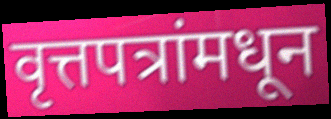
वृत्तपत्रांमधून